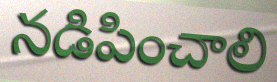
నడిపించాలి